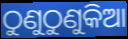
ଠୁଣୁଠୁଣୁକିଆ